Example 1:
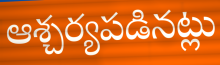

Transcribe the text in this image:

ఆశ్చర్యపడినట్లు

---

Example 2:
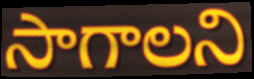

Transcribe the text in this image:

సాగాలని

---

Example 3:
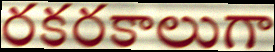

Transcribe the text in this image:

రకరకాలుగా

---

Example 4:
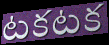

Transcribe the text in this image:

టకటక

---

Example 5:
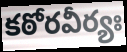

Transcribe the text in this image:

కఠోరవీర్యః